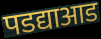
पडद्याआड